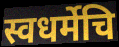
स्वधर्मेचि